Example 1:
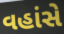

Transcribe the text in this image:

વહાંસે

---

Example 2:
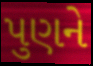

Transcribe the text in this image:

પુણને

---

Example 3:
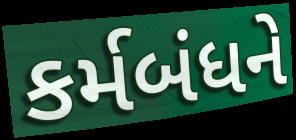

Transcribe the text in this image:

કર્મબંધને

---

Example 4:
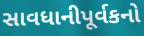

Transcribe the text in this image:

સાવધાનીપૂર્વકનો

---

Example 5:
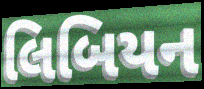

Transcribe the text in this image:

લિબિયન